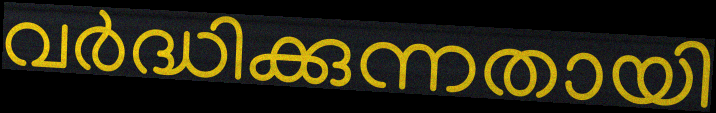
വർദ്ധിക്കുന്നതായി